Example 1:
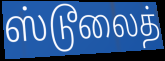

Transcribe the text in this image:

ஸ்டூலைத்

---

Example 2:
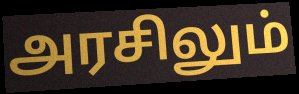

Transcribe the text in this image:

அரசிலும்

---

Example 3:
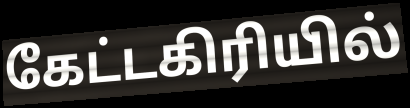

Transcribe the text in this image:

கேட்டகிரியில்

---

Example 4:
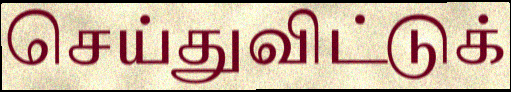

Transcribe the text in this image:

செய்துவிட்டுக்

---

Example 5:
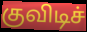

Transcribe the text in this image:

குவிடிச்